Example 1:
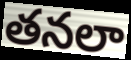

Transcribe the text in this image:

తనలా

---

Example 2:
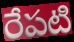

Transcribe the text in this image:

రేపటి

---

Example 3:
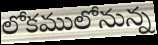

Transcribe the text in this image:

లోకములోనున్న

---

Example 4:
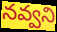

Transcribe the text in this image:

నవ్వని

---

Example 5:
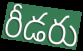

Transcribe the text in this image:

రీడరు